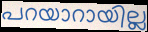
പറയാറായില്ല